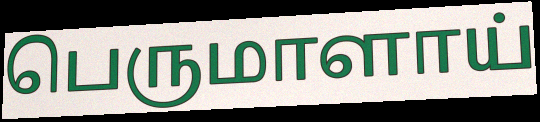
பெருமாளாய்